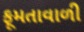
ફૂમતાવાળી